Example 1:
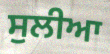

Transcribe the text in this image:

ਸੁਲੀਆ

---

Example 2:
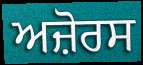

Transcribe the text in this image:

ਅਜ਼ੋਰਸ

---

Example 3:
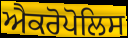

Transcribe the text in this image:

ਐਕਰੋਪੋਲਿਸ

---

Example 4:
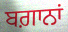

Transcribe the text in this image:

ਬਗ਼ਾਨਾਂ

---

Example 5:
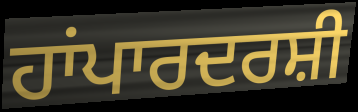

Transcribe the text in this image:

ਹਾਂਪਾਰਦਰਸ਼ੀ